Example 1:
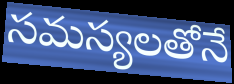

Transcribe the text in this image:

సమస్యలతోనే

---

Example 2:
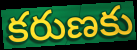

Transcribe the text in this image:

కరుణకు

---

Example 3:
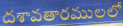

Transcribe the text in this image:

దశావతారములలో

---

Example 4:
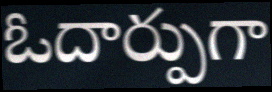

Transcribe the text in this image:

ఓదార్పుగా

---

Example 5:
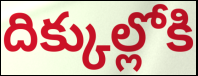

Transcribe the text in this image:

దిక్కుల్లోకి